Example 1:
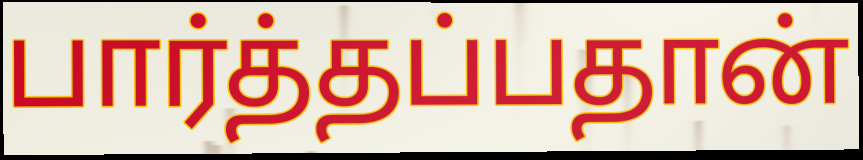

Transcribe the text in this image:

பார்த்தப்பதான்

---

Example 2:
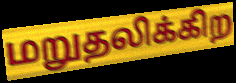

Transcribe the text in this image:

மறுதலிக்கிற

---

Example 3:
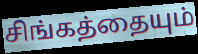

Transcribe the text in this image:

சிங்கத்தையும்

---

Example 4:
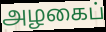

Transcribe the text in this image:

அழகைப்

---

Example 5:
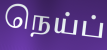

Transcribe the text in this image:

நெய்ப்